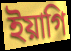
ইয়াগি